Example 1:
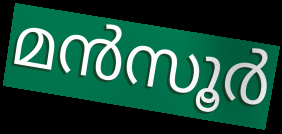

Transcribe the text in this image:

മൻസൂർ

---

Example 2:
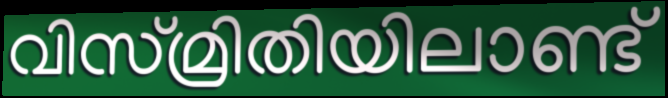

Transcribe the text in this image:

വിസ്മ്രിതിയിലാണ്ട്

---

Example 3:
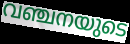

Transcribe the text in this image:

വഞ്ചനയുടെ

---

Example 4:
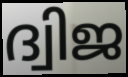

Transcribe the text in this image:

ദ്വിജ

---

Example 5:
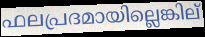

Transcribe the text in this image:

ഫലപ്രദമായില്ലെങ്കില്